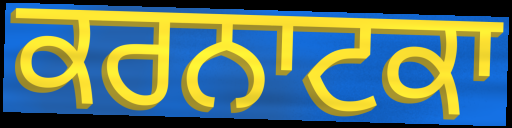
ਕਰਨਾਟਕਾ